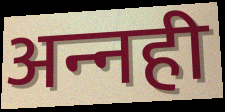
अन्नही